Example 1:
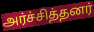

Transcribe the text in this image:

அர்ச்சித்தனர்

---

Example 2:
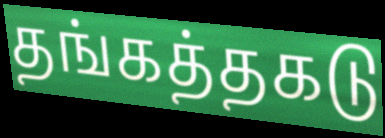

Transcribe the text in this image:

தங்கத்தகடு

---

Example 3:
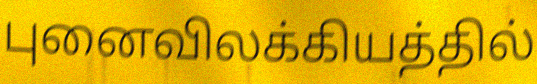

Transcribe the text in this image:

புனைவிலக்கியத்தில்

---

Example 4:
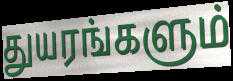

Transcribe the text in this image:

துயரங்களும்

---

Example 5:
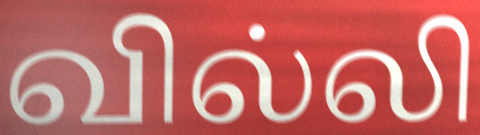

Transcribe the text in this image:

வில்லி